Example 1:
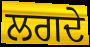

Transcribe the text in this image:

ਲਗਦੇ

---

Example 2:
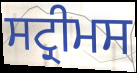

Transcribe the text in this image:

ਸਟ੍ਰੀਮਸ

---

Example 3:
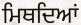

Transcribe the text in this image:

ਮਿਥਦਿਆਂ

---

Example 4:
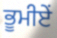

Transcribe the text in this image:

ਭੂਮੀਏਂ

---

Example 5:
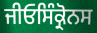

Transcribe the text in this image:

ਜੀਓਸਿੰਕ੍ਰੋਨਸ